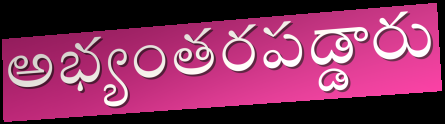
అభ్యంతరపడ్డారు